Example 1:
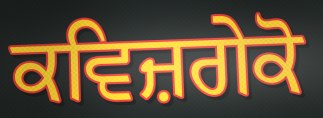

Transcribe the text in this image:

ਕਵਿਜ਼ਗੇਕੋ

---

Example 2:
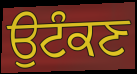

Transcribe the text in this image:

ਉਟੰਕਣ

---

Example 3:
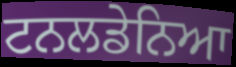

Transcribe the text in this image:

ਟਨਲਡੇਨਿਆ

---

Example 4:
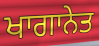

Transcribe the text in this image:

ਖਾਗਾਨੇਤ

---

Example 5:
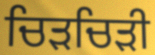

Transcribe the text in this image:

ਚਿੜਚਿੜੀ